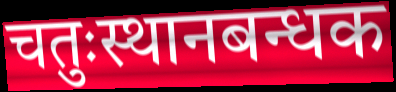
चतुःस्थानबन्धक